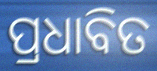
ପ୍ରଧାବିତ